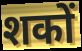
शकों